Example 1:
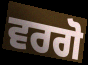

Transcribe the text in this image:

ਵਰਗੋ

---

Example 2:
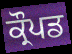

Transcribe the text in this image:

ਕ੍ਰੌਪਡ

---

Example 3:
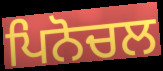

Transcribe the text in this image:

ਪਿਨੋਚਲ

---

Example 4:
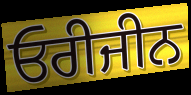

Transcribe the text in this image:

ਓਰੀਜੀਨ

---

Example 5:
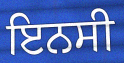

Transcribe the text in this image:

ਇਨਸੀ